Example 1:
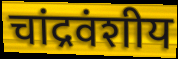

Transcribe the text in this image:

चांद्रवंशीय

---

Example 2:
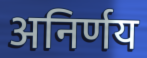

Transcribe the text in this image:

अनिर्णय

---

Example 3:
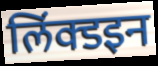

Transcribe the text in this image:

लिंक्डइन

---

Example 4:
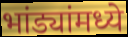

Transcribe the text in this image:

भांड्यांमध्ये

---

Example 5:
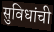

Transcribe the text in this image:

सुविधांची